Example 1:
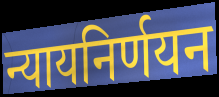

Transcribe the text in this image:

न्यायनिर्णयन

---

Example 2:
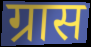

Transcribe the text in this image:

ग्रास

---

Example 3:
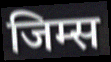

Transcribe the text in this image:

जिम्स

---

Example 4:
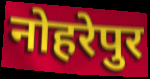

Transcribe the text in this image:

नोहरेपुर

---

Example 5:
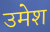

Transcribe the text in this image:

उमेश